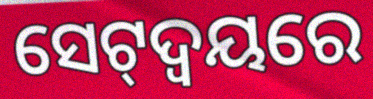
ସେଟ୍‌ଦ୍ଵୟରେ